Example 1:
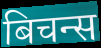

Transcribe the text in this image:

बिचन्स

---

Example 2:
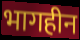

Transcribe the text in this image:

भागहीन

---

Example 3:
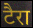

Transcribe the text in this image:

टैरा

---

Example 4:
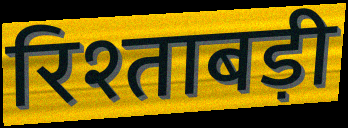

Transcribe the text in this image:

रिश्ताबड़ी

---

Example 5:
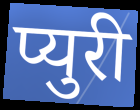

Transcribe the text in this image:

प्युरी